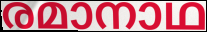
രമാനാഥ